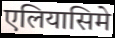
एलियासिमे